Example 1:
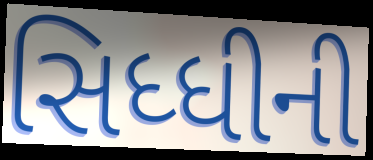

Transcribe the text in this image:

સિધ્ધીની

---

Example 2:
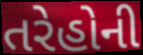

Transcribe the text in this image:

તરેહોની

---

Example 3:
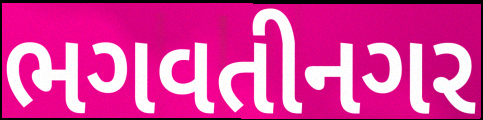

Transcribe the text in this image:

ભગવતીનગર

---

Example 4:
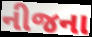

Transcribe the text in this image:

નીજના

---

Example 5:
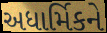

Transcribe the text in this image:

અધાર્મિકને